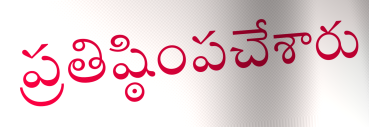
ప్రతిష్ఠింపచేశారు